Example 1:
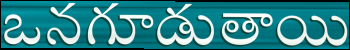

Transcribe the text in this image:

ఒనగూడుతాయి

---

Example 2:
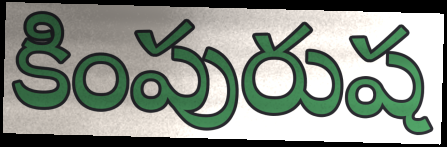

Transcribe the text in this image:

కింపురుష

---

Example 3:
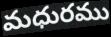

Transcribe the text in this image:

మధురము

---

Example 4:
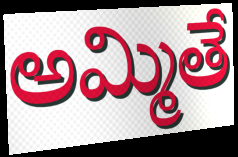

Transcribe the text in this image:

అమ్మితే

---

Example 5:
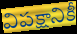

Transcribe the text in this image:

విపక్షానికీ